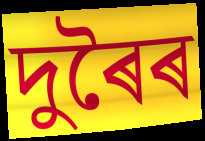
দুৰৈৰ